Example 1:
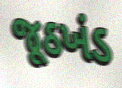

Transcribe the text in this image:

જૂઠખંડ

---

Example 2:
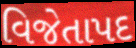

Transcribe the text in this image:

વિજેતાપદ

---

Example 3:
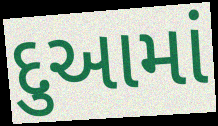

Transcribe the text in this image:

દુઆમાં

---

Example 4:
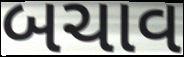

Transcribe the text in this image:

બચાવ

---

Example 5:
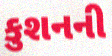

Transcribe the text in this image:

કુશનની